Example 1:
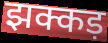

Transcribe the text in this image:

झक्कड़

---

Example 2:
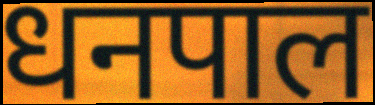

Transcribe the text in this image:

धनपाल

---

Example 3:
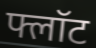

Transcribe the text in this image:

फ्लॉट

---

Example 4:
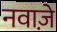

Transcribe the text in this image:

नवाज़े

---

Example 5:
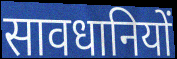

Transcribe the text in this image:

सावधानियों